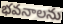
భవనాలను